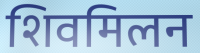
शिवमिलन